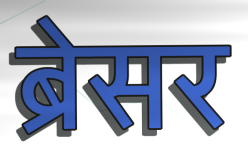
ब्रेसर